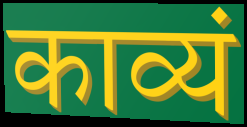
काव्यं